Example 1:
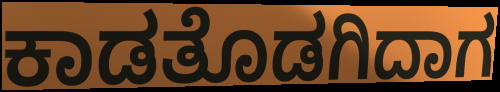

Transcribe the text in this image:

ಕಾಡತೊಡಗಿದಾಗ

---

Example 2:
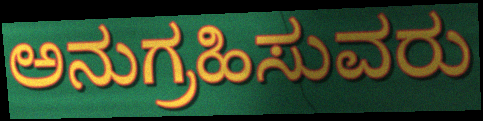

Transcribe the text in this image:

ಅನುಗ್ರಹಿಸುವರು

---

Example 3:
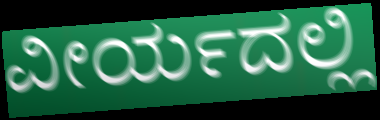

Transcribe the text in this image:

ವೀರ್ಯದಲ್ಲಿ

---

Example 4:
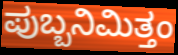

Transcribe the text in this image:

ಪುಬ್ಬನಿಮಿತ್ತಂ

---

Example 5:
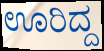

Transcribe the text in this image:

ಊರಿದ್ದ